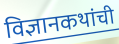
विज्ञानकथांची